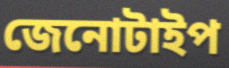
জেনোটাইপ